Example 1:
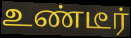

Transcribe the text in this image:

உண்டீர்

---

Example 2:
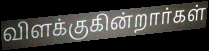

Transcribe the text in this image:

விளக்குகின்றார்கள்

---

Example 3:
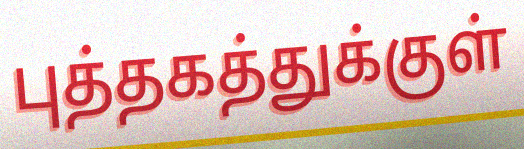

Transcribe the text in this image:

புத்தகத்துக்குள்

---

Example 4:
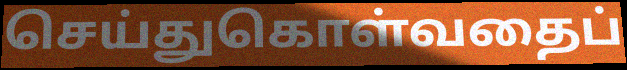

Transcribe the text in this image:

செய்துகொள்வதைப்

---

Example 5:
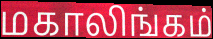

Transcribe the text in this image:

மகாலிங்கம்